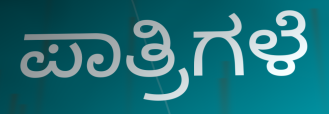
ಪಾತ್ರಿಗಳೆ